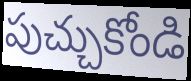
పుచ్చుకోండి